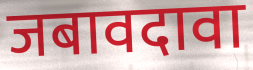
जबावदावा